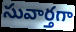
సువార్తగా